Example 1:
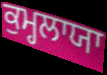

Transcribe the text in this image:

ਕੁਮ੍ਹਲਾਯਾ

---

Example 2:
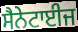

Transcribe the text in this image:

ਸੈਨੇਟਾਈਜ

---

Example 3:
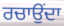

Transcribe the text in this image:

ਰਚਾਉਂਦਾ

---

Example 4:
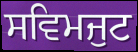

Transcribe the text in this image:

ਸਵਿਮਜੁਟ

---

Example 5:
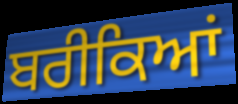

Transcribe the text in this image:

ਬਰੀਕਿਆਂ